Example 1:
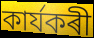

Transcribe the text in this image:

কাৰ্যকৰী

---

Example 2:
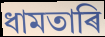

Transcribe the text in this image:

ধামতাৰি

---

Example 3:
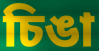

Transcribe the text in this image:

চিঙা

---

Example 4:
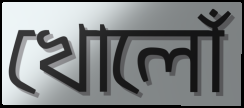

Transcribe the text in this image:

খোলোঁ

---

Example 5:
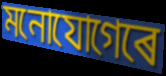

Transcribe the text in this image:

মনোযোগেৰে